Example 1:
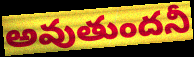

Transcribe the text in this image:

అవుతుందనీ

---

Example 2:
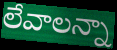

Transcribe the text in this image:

లేవాలన్నా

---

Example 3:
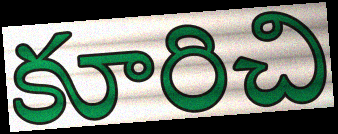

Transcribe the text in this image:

కూరిచి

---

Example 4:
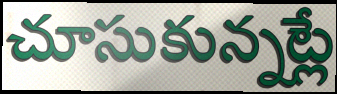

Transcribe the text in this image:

చూసుకున్నట్లే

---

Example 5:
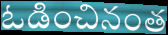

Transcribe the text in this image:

ఓడించినంత